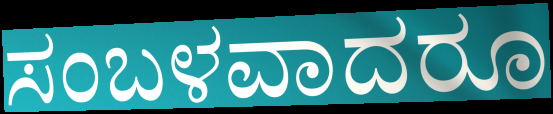
ಸಂಬಳವಾದರೂ